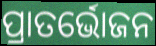
ପ୍ରାତର୍ଭୋଜନ